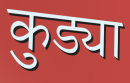
कुड्या